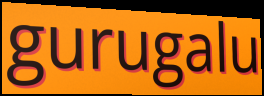
gurugalu